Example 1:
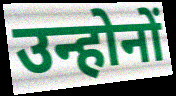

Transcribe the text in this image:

उन्होनों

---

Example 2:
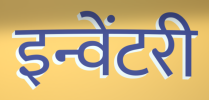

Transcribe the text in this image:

इन्वेंटरी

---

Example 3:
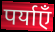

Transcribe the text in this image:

पर्याएँ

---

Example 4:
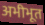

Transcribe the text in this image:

अभीभूत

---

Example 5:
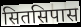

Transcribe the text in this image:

सितसिपास